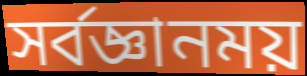
সর্বজ্ঞানময়